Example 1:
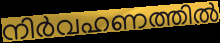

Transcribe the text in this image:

നിർവഹണത്തിൽ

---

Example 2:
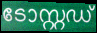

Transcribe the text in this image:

ടോസ്റ്റഡ്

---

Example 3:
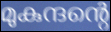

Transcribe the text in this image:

മുകുന്ദന്റെ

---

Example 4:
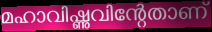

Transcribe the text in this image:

മഹാവിഷ്ണുവിന്റേതാണ്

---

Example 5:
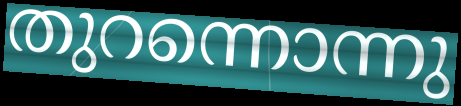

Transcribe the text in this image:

തുറന്നൊന്നു